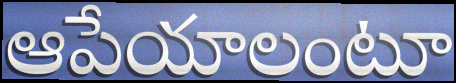
ఆపేయాలంటూ